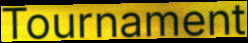
Tournament